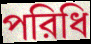
পরিধি